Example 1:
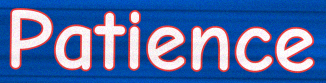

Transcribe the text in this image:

Patience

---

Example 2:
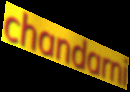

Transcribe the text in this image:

chandarni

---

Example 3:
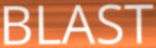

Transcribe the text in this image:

BLAST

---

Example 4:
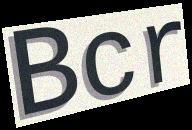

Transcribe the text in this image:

Bcr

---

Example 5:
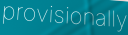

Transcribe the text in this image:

provisionally